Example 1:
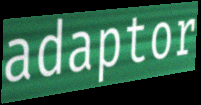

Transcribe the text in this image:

adaptor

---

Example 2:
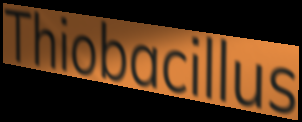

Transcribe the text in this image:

Thiobacillus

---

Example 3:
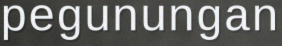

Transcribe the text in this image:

pegunungan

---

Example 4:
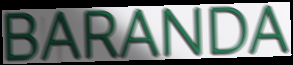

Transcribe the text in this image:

BARANDA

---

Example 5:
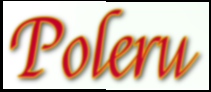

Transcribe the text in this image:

Poleru